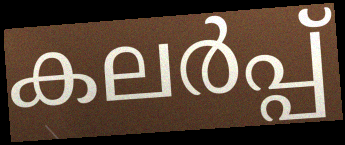
കലർപ്പ്